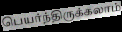
பெயர்ந்திருக்கலாம்